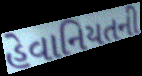
હેવાનિયતની